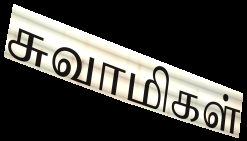
சுவாமிகள்